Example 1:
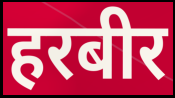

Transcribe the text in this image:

हरबीर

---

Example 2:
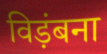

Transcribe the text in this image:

विड़ंबना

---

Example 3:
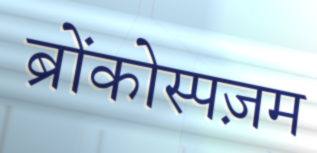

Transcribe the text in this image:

ब्रोंकोस्पज़म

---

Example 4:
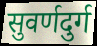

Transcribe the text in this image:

सुवर्णदुर्ग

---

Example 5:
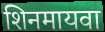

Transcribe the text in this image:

शिनमायवा